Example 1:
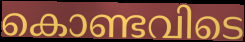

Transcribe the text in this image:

കൊണ്ടവിടെ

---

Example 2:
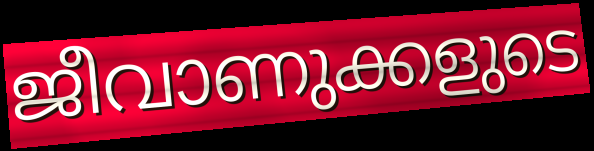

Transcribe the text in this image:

ജീവാണുക്കളുടെ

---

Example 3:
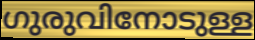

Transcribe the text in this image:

ഗുരുവിനോടുള്ള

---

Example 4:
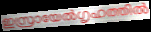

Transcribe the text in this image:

ഇസ്രായേൽഗൃഹത്തിൽ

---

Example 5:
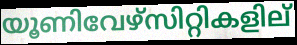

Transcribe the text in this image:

യൂണിവേഴ്സിറ്റികളില്